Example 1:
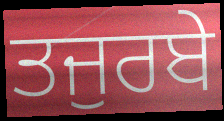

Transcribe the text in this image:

ਤਜੁਰਬੇ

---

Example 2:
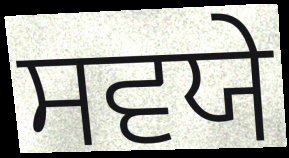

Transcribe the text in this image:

ਸਵਯੇ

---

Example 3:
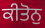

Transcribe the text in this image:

ਕੀਤੋਨੁ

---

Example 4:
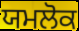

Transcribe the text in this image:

ਯਮਲੋਕ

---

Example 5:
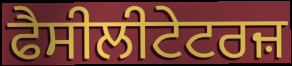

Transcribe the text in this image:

ਫੈਸੀਲੀਟੇਟਰਜ਼